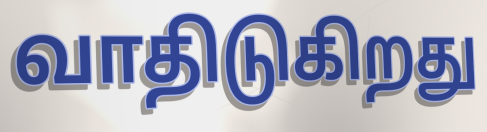
வாதிடுகிறது